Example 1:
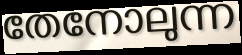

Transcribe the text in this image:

തേനോലുന്ന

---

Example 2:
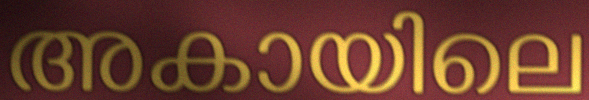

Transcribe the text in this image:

അകായിലെ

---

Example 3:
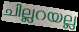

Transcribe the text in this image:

ചില്ലറയല്ല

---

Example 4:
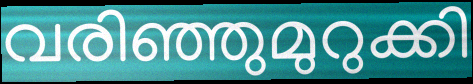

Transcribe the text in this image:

വരിഞ്ഞുമുറുക്കി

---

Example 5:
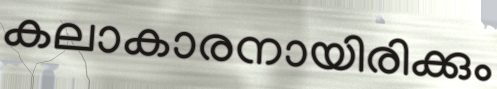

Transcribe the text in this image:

കലാകാരനായിരിക്കും